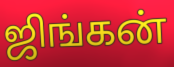
ஜிங்கன்